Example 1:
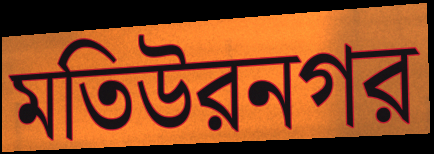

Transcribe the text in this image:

মতিউরনগর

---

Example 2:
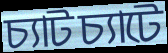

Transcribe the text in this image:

চ্যাটচ্যাটে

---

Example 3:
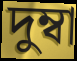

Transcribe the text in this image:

দুম্বা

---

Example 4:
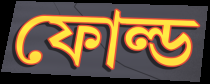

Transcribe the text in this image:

ফোল্ড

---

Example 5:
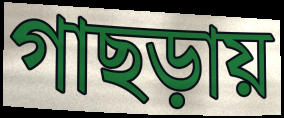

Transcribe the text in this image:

গাছড়ায়